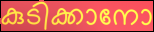
കുടിക്കാനോ